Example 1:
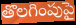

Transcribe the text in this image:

తొలగింపుపై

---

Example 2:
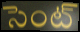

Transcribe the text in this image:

సెంట్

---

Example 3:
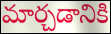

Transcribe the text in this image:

మార్చడానికి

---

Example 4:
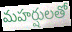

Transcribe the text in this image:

మహర్షులతో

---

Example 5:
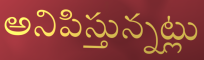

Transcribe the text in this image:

అనిపిస్తున్నట్లు